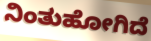
ನಿಂತುಹೋಗಿದೆ